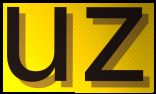
uz